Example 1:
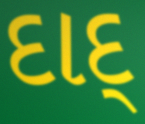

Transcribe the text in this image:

દાદ્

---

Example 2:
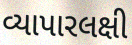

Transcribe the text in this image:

વ્યાપારલક્ષી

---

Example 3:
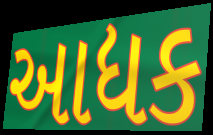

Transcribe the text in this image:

આદ્યક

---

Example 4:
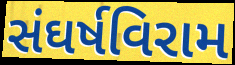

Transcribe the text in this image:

સંઘર્ષવિરામ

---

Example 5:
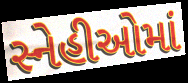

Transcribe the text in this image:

સ્નેહીઓમાં